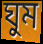
ঘুম